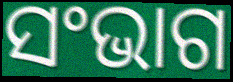
ସଂଭାଗ